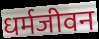
धर्मजीवन